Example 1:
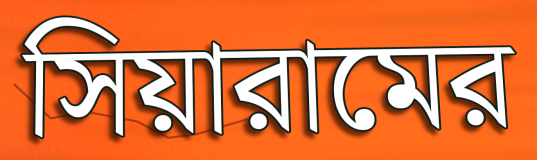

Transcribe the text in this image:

সিয়ারামের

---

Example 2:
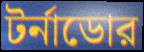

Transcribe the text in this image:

টর্নাডোর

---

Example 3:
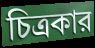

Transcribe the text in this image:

চিত্রকার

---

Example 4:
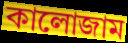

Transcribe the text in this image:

কালোজাম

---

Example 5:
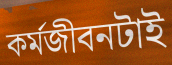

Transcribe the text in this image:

কর্মজীবনটাই